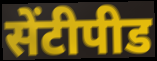
सेंटीपीड